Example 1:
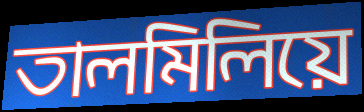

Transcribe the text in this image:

তালমিলিয়ে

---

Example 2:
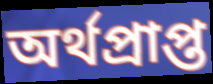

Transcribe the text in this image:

অর্থপ্রাপ্ত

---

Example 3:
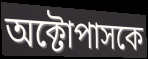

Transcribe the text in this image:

অক্টোপাসকে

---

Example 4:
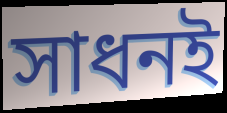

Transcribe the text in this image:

সাধনই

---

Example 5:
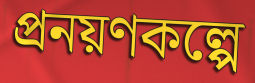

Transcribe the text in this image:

প্রনয়ণকল্পে